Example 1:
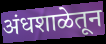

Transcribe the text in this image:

अंधशाळेतून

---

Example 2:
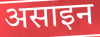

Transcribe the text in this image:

असाइन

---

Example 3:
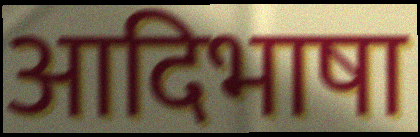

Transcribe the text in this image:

आदिभाषा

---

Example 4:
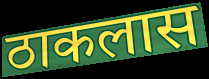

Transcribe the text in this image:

ठाकलास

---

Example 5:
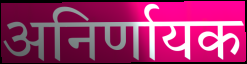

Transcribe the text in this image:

अनिर्णायक